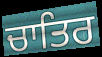
ਚਾਤਿਰ